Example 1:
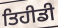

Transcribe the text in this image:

ਤਿਹੀਡੀ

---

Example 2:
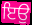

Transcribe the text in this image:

ਇਉ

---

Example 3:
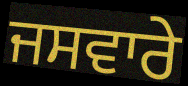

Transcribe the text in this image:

ਜਸਵਾਰੇ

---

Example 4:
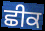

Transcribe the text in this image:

ਛੀਕ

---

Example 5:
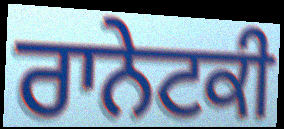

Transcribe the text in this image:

ਰਾਨੇਟਕੀ